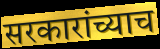
सरकारांच्याच